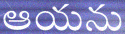
ఆయను